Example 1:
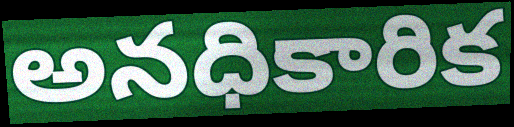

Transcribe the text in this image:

అనధికారిక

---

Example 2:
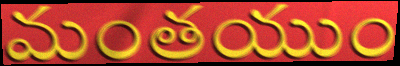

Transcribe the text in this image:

మంతయుం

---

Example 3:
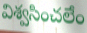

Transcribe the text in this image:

విశ్వసించలేం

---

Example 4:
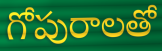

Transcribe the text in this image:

గోపురాలతో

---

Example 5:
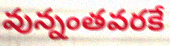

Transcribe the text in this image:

వున్నంతవరకే